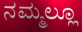
ನಮ್ಮಲ್ಲೂ